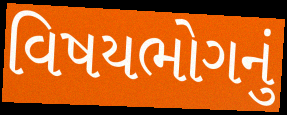
વિષયભોગનું